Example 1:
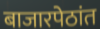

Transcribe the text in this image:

बाजारपेठांत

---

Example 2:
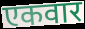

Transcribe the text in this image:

एकवार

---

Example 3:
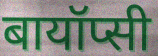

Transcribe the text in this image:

बायॉप्सी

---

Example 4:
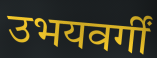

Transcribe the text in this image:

उभयवर्गीं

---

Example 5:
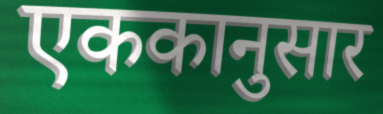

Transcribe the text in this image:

एककानुसार